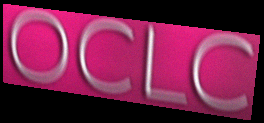
OCLC